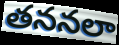
తననలా